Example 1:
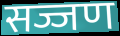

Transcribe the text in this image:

सज्जण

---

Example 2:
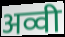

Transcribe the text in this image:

अव्वी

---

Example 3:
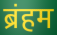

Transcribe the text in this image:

ब्रंहम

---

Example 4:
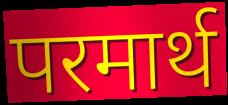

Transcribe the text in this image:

परमार्थ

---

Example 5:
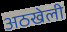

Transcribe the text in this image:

अठखेली